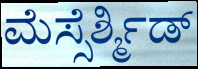
ಮೆಸ್ಸೆರ್ಶ್ಮಿಡ್